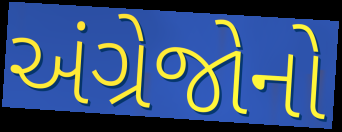
અંગ્રેજોનો